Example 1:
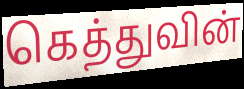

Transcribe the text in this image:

கெத்துவின்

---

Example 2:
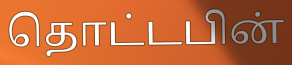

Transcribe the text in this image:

தொட்டபின்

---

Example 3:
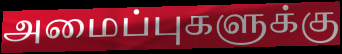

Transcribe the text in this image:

அமைப்புகளுக்கு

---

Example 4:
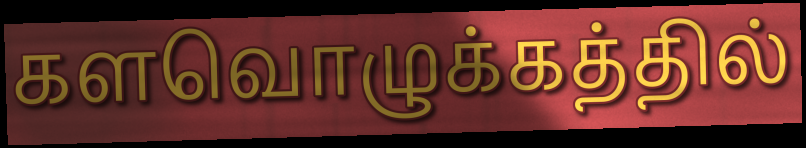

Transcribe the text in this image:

களவொழுக்கத்தில்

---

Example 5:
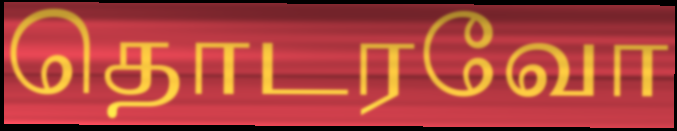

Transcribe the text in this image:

தொடரவோ